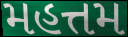
મહત્તમ